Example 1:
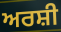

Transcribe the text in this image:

ਅਰਸ਼ੀ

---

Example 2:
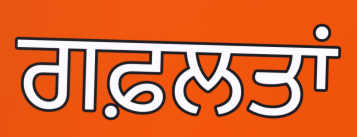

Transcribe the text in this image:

ਗਫ਼ਲਤਾਂ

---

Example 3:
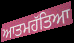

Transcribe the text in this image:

ਆਤਮਹੱਤਿਆ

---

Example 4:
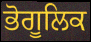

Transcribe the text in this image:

ਭੋਗੂਲਿਕ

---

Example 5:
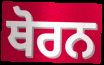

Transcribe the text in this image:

ਥੋਰਨ